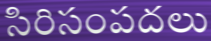
సిరిసంపదలు